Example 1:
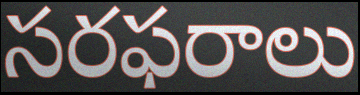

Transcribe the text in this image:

సరఫరాలు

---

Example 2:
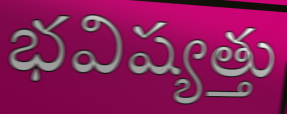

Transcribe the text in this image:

భవిష్యత్తు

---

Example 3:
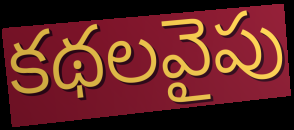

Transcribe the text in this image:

కథలవైపు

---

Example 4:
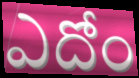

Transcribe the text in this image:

ఎదోం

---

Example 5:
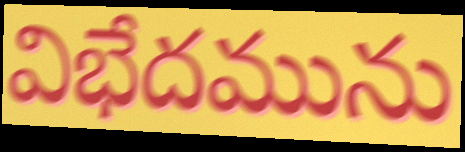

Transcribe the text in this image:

విభేదమును